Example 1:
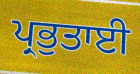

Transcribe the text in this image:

ਪ੍ਰਭੁਤਾਈ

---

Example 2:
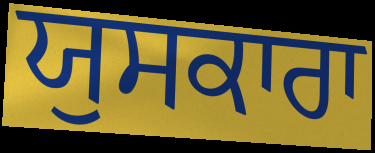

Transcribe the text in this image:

ਯੁਸਕਾਰਾ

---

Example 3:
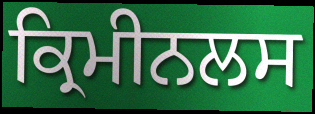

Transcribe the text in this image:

ਕ੍ਰਿਮੀਨਲਸ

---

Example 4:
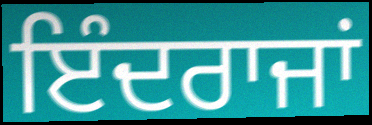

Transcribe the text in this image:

ਇੰਦਰਾਜਾਂ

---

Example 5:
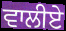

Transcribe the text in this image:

ਵਾਲੀਏ